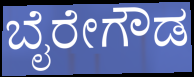
ಬೈರೇಗೌಡ